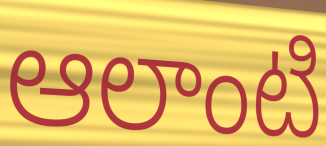
ఆలాంటి